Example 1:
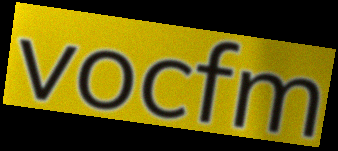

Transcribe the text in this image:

vocfm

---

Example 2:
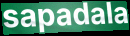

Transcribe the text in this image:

sapadala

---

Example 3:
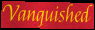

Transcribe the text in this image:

Vanquished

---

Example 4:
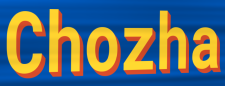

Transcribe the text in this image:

Chozha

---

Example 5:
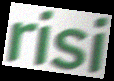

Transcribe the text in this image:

risi